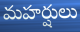
మహర్షులు